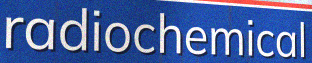
radiochemical